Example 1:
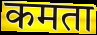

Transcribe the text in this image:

कमता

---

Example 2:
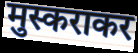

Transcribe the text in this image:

मुस्कराकर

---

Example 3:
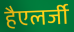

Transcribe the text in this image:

हैएलर्जी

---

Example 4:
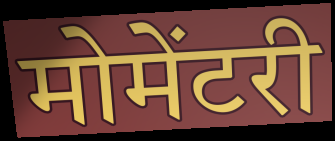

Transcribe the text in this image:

मोमेंटरी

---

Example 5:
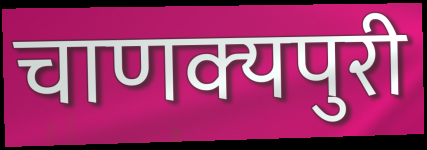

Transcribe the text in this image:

चाणक्यपुरी